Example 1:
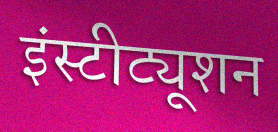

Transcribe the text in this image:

इंस्टीट्यूशन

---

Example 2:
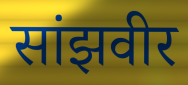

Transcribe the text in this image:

सांझवीर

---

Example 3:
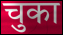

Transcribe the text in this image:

चुका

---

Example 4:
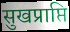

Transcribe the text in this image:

सुखप्राप्ति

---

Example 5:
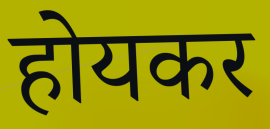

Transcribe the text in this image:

होयकर